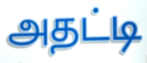
அதட்டி